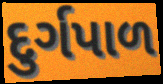
દુર્ગપાળ